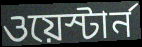
ওয়েস্টার্ন